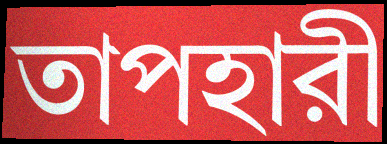
তাপহারী